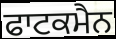
ਫਾਟਕਮੈਨ